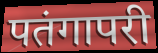
पतंगापरी